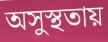
অসুস্থতায়